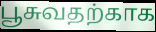
பூசுவதற்காக